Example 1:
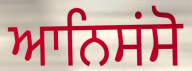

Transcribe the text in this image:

ਆਨਿਸਂਸੋ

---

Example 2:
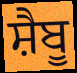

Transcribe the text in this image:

ਸ਼ੈਬੂ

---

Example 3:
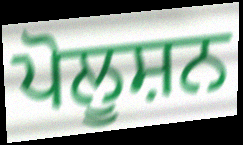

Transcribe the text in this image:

ਪੋਲੂਸ਼ਨ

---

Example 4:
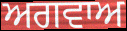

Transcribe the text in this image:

ਅਗਵਾਅ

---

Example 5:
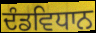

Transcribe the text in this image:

ਦੰਡਵਿਧਾਨ